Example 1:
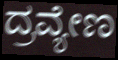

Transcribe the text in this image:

ದ್ರವ್ಯೇಣ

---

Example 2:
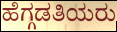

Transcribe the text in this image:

ಹೆಗ್ಗಡತಿಯರು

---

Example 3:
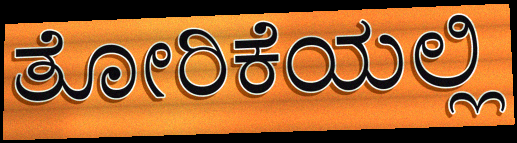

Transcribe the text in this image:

ತೋರಿಕೆಯಲ್ಲಿ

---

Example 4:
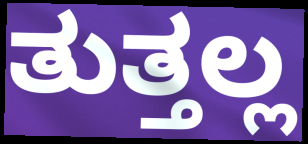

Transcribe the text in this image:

ತುತ್ತಲ್ಲ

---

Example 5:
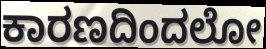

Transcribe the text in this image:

ಕಾರಣದಿಂದಲೋ